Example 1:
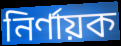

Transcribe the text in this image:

নির্ণায়ক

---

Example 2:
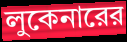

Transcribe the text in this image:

লুকেনারের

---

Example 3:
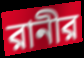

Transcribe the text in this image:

রানীর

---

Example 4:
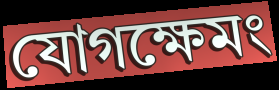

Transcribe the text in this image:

যোগক্ষেমং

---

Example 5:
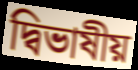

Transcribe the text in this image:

দ্বিভাষীয়